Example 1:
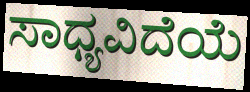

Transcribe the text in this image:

ಸಾಧ್ಯವಿದೆಯೆ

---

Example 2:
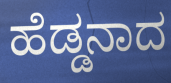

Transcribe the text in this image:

ಹೆಡ್ಡನಾದ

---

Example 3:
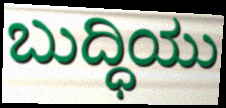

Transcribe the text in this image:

ಬುದ್ಧಿಯು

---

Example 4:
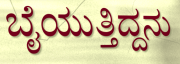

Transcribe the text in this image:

ಬೈಯುತ್ತಿದ್ದನು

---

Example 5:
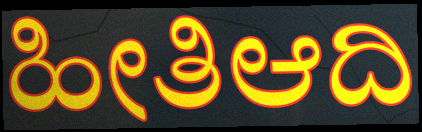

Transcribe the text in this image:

ಹೀತಿಆದಿ